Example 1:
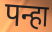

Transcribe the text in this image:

पन्हा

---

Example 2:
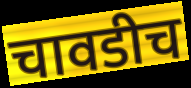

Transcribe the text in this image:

चावडीच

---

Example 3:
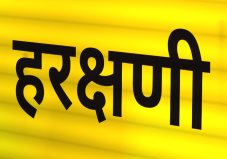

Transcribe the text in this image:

हरक्षणी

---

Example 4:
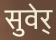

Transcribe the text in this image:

सुवेर्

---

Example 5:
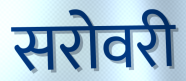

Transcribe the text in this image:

सरोवरी